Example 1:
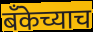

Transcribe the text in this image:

बँकेच्याच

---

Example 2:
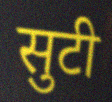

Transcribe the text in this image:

सुटी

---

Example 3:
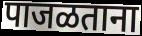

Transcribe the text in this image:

पाजळताना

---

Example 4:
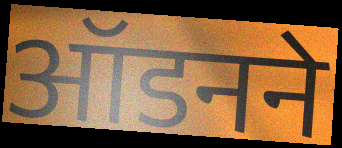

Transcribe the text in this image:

ऑडनने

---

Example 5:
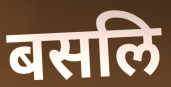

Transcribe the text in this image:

बसलि